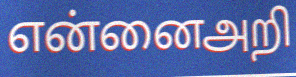
என்னைஅறி